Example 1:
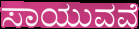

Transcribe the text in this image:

ಸಾಯುವವೆ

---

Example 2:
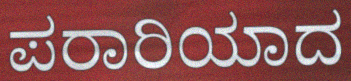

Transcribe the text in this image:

ಪರಾರಿಯಾದ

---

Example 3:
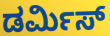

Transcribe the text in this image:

ಡರ್ಮಿಸ್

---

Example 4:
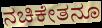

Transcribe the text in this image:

ನಚಿಕೇತನೂ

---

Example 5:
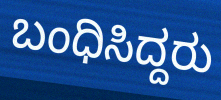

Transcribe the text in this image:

ಬಂಧಿಸಿದ್ದರು